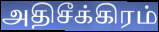
அதிசீக்கிரம்